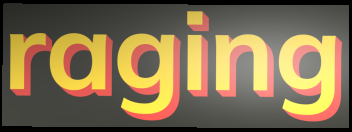
raging